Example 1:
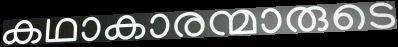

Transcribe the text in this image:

കഥാകാരന്മാരുടെ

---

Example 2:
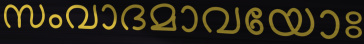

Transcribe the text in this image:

സംവാദമാവയോഃ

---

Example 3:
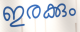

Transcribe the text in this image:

ഇരക്കും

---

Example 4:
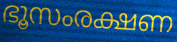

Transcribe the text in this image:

ഭൂസംരക്ഷണ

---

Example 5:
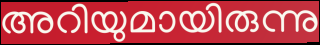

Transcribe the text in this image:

അറിയുമായിരുന്നു